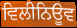
ਵਿਲੀਨਿਊਵ